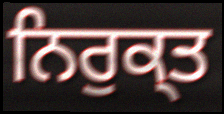
ਨਿਰੁਕ੍ਤ